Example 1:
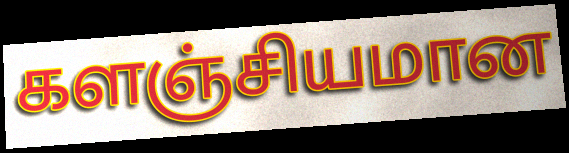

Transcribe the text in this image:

களஞ்சியமான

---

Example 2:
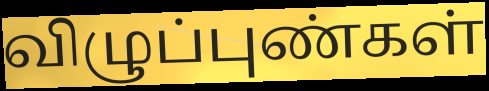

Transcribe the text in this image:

விழுப்புண்கள்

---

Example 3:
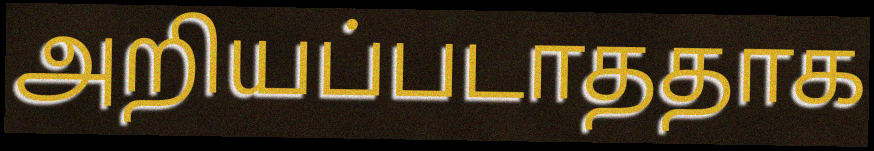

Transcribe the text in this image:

அறியப்படாததாக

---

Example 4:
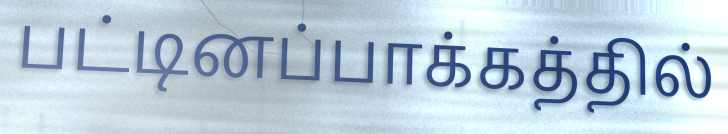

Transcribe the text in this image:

பட்டினப்பாக்கத்தில்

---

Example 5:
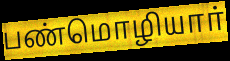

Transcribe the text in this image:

பண்மொழியார்